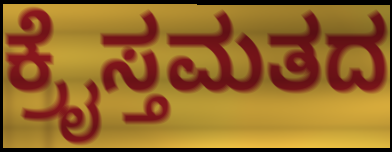
ಕ್ರೈಸ್ತಮತದ